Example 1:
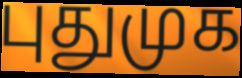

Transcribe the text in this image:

புதுமுக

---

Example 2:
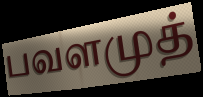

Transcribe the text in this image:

பவளமுத்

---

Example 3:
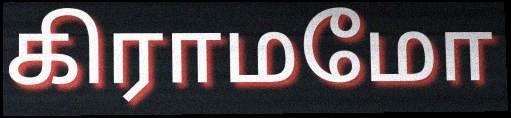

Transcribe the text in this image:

கிராமமோ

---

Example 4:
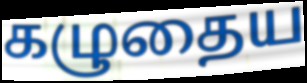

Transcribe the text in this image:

கழுதைய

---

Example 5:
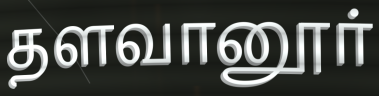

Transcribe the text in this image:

தளவானூர்